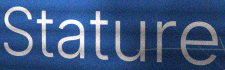
Stature